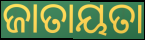
ଜାତାୟତା